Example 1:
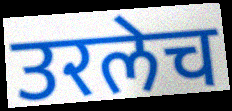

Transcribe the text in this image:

उरलेच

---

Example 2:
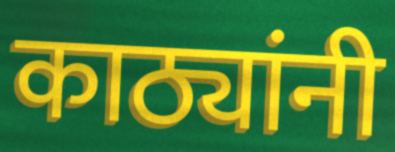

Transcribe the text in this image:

काठ्यांनी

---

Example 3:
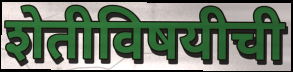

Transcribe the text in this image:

शेतीविषयीची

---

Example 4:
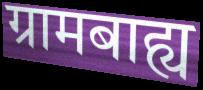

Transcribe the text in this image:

ग्रामबाह्य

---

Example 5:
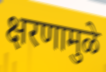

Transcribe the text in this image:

क्षरणामुळे